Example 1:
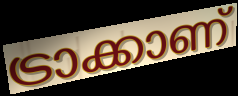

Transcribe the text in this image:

ട്രാക്കാണ്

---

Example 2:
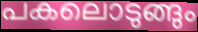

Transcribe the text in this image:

പകലൊടുങ്ങും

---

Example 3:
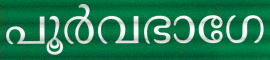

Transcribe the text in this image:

പൂർവഭാഗേ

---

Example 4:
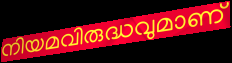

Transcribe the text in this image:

നിയമവിരുദ്ധവുമാണ്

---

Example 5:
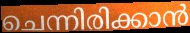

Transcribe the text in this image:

ചെന്നിരിക്കാൻ